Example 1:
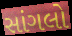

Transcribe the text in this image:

સાંગલો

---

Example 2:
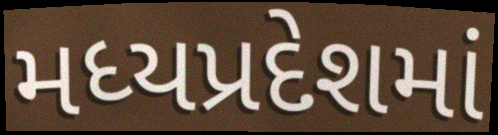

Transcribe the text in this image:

મધ્યપ્રદેશમાં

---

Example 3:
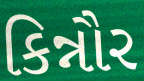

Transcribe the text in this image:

કિન્નૌર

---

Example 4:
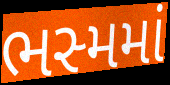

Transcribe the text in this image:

ભસ્મમાં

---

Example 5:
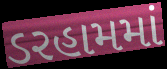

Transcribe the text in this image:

ડરહામમાં